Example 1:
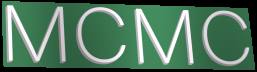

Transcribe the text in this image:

MCMC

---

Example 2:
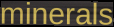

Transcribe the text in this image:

minerals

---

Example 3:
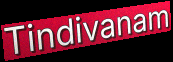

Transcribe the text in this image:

Tindivanam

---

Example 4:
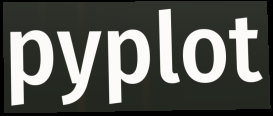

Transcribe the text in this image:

pyplot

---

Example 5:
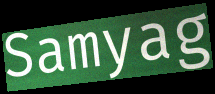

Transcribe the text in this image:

Samyag